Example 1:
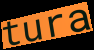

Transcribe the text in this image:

tura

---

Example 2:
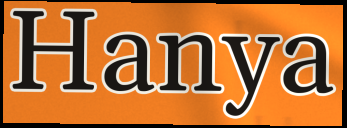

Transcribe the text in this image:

Hanya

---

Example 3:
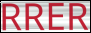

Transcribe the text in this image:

RRER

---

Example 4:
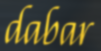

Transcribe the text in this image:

dabar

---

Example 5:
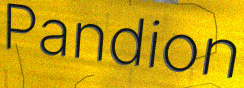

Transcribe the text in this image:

Pandion